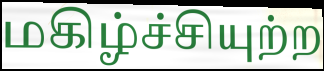
மகிழ்ச்சியுற்ற